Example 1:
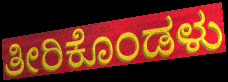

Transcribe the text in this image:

ತೀರಿಕೊಂಡಳು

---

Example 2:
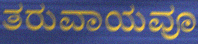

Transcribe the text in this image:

ತರುವಾಯವೂ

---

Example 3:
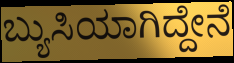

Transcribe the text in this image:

ಬ್ಯುಸಿಯಾಗಿದ್ದೇನೆ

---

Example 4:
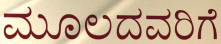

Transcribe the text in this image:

ಮೂಲದವರಿಗೆ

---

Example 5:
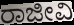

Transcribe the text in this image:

ರಾಜೀವಿ